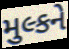
મુલ્કને